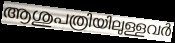
ആശുപത്രിയിലുള്ളവർ